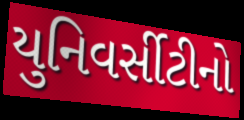
યુનિવર્સીટીનો